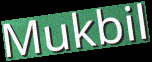
Mukbil